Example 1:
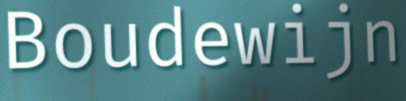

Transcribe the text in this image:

Boudewijn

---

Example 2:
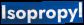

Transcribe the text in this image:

Isopropyl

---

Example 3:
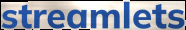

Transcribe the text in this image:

streamlets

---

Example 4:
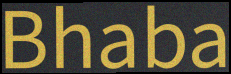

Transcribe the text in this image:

Bhaba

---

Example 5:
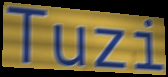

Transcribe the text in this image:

Tuzi